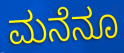
ಮನೆನೂ